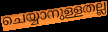
ചെയ്യാനുള്ളതല്ല